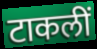
टाकलीं